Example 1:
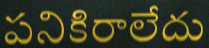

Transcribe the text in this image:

పనికిరాలేదు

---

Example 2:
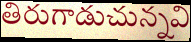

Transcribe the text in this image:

తిరుగాడుచున్నవి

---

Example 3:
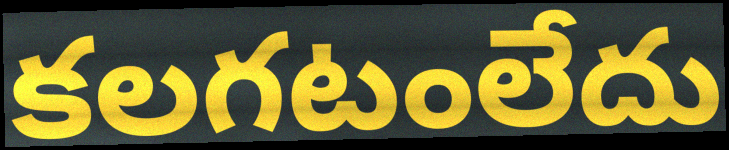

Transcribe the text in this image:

కలగటంలేదు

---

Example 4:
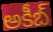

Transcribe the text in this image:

అకీబ్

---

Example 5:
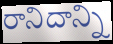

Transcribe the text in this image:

రానిదాన్ని